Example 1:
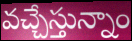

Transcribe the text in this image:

వచ్చేస్తున్నాం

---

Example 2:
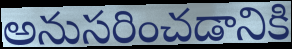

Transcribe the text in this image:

అనుసరించడానికి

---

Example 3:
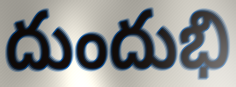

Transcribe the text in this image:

దుందుభి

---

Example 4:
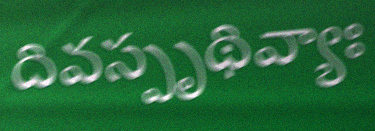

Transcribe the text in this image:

దివస్పృథివ్యాః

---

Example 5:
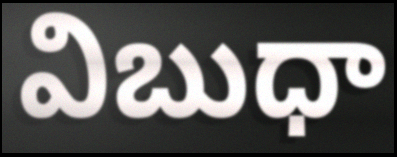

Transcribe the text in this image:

విబుధా